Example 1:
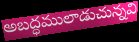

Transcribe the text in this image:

అబద్ధములాడుచున్నవి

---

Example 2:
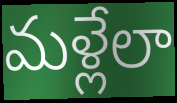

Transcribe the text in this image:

మళ్లేలా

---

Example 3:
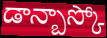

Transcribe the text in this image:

డాన్బాస్కో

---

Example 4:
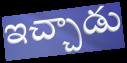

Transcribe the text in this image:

ఇచ్చాడు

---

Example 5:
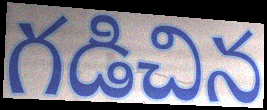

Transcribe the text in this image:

గడిచిన